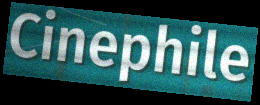
Cinephile